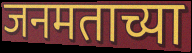
जनमताच्या